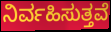
ನಿರ್ವಹಿಸುತ್ತವೆ